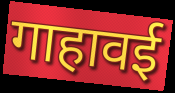
गाहावई